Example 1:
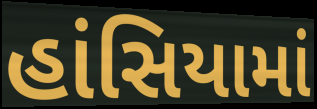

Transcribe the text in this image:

હાંસિયામાં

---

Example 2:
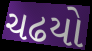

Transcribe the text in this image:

ચઢયો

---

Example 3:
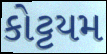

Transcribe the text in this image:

કોટ્ટયમ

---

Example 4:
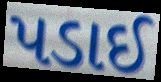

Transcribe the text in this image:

પડાઈ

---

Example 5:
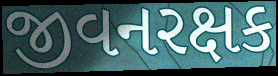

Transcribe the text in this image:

જીવનરક્ષક